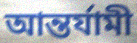
আন্তর্যামী